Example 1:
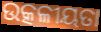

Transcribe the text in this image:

ଉତ୍କଳୀୟତା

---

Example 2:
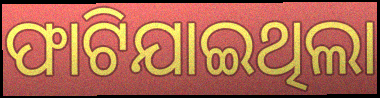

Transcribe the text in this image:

ଫାଟିଯାଇଥିଲା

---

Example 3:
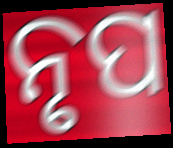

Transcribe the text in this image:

ନୃପ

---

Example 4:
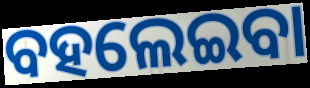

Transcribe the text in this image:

ବହଲେଇବା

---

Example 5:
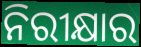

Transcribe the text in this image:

ନିରୀକ୍ଷାର